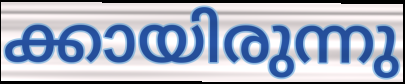
ക്കായിരുന്നു